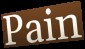
Pain